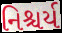
નિશ્ચર્ય